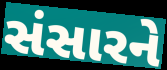
સંસારને